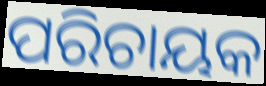
ପରିଚାୟକ